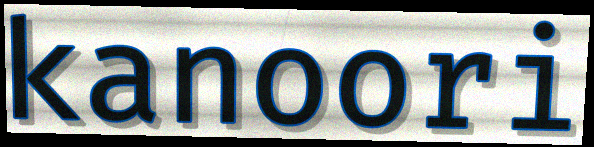
kanoori